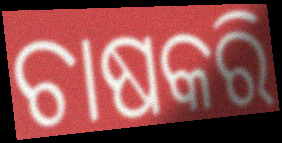
ଚାଷକରି